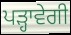
ਪੜ੍ਹਾਵੇਗੀ